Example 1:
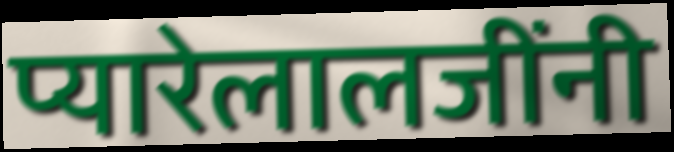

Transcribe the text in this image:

प्यारेलालजींनी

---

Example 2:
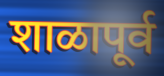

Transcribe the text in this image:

शाळापूर्व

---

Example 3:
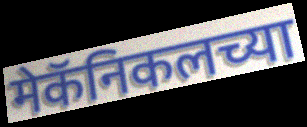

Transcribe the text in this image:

मेकॅनिकलच्या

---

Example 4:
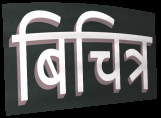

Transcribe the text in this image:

बिचित्र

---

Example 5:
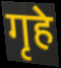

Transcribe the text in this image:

गृहे